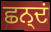
ਛਨ੍ਦਂ